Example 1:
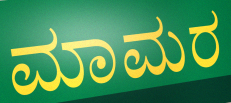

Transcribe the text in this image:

ಮಾಮರ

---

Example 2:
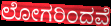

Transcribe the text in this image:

ಲೋಗರಿಂದವೆ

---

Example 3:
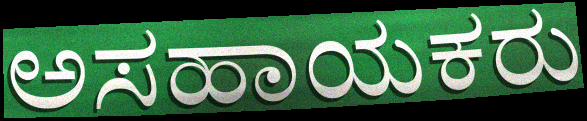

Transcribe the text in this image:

ಅಸಹಾಯಕರು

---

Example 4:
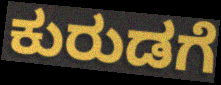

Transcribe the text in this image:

ಕುರುಡಗೆ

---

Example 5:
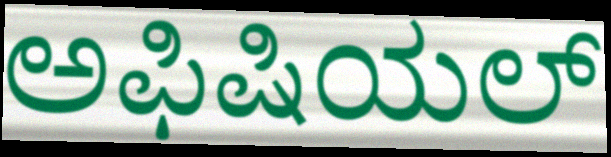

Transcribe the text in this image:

ಅಫಿಷಿಯಲ್